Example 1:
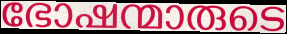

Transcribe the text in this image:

ഭോഷന്മാരുടെ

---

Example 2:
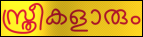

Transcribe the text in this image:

സ്ത്രീകളാരും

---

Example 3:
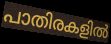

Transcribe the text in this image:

പാതിരകളിൽ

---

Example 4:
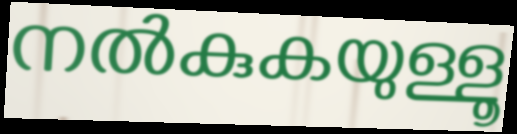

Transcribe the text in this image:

നൽകുകയുള്ളൂ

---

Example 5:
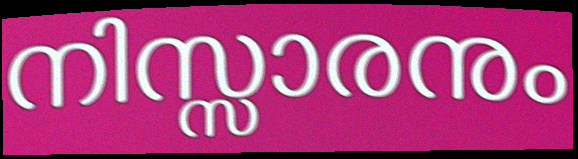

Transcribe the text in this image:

നിസ്സാരനും